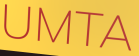
UMTA